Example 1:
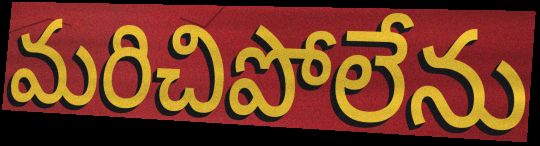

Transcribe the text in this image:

మరిచిపోలేను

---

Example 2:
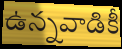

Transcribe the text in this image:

ఉన్నవాడికీ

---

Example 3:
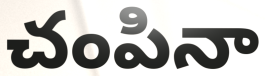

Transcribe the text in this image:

చంపినా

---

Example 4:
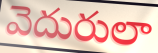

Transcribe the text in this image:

వెదురులా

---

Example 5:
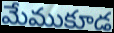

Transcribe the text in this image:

మేముకూడ